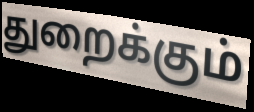
துறைக்கும்